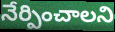
నేర్పించాలని